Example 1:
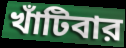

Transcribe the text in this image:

খাঁটিবার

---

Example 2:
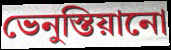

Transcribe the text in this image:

ভেনুস্তিয়ানো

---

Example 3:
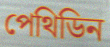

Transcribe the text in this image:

পেথিডিন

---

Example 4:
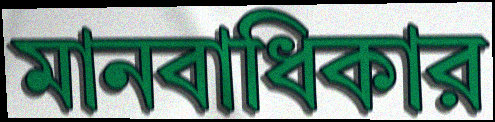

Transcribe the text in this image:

মানবাধিকার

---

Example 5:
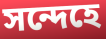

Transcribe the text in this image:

সন্দেহে